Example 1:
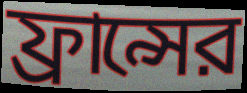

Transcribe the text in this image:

ফ্রান্সের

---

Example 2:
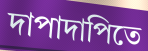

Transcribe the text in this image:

দাপাদাপিতে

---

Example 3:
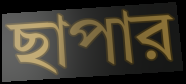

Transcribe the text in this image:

ছাপার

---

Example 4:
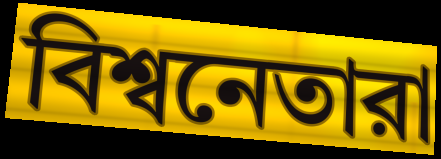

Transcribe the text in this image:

বিশ্বনেতারা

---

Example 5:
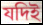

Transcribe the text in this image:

যদিই